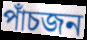
পাঁচজন